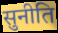
सुनीति